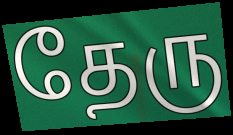
தேரு